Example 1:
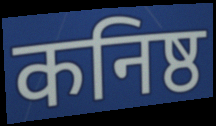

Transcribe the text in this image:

कनिष्ठ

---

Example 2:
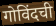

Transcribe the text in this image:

गोविंदची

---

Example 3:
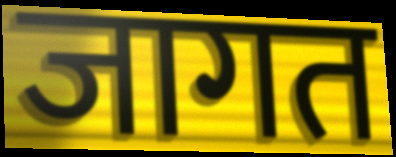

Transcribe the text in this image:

जागत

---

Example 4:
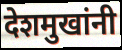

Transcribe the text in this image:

देशमुखांनी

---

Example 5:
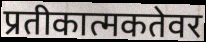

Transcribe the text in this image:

प्रतीकात्मकतेवर